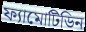
ফ্যামোটিডিন